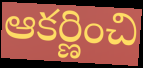
ఆకర్ణించి